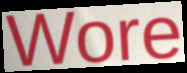
Wore